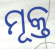
ମୂକ୍ତ